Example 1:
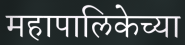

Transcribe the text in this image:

महापालिकेच्या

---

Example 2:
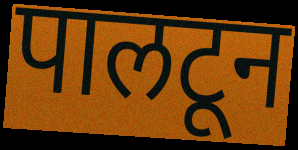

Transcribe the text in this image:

पालटून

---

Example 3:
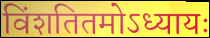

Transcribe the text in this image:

विंशतितमोऽध्यायः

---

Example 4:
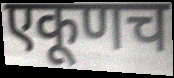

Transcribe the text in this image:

एकूणच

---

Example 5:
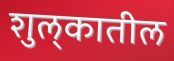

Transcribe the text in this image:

शुल्कातील